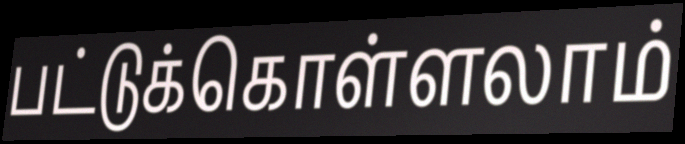
பட்டுக்கொள்ளலாம்